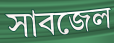
সাবজেল